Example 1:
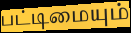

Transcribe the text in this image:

பட்டிமையும்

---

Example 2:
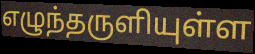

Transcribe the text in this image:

எழுந்தருளியுள்ள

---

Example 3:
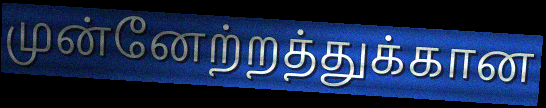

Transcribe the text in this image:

முன்னேற்றத்துக்கான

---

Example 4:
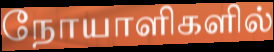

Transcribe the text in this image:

நோயாளிகளில்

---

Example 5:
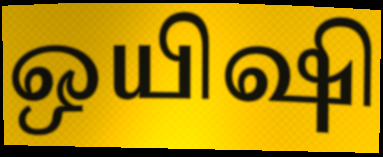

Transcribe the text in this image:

ஒயிஷி